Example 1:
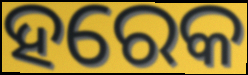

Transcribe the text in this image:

ହରେକ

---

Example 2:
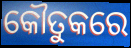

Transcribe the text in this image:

କୌତୁକରେ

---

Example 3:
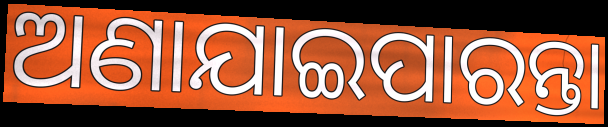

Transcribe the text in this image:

ଅଣାଯାଇପାରନ୍ତା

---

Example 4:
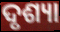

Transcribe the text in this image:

ଦୃଶ୍ୟା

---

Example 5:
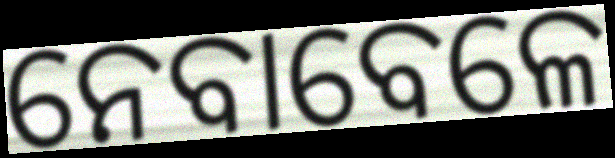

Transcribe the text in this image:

ନେବାବେଳେ